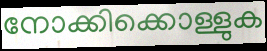
നോക്കിക്കൊള്ളുക